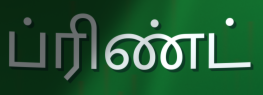
ப்ரிண்ட்